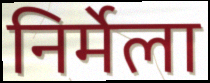
निर्मेला